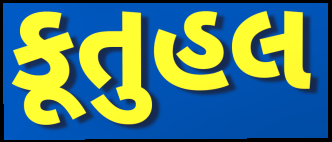
કૂતુહલ